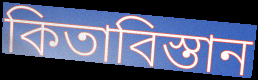
কিতাবিস্তান